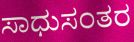
ಸಾಧುಸಂತರ